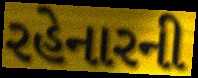
રહેનારની